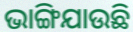
ଭାଙ୍ଗିଯାଉଛି